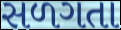
સળગતા